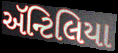
ઍન્ટિલિયા